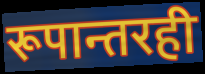
रूपान्तरही